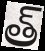
త్